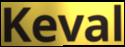
Keval